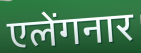
एलेंगनार